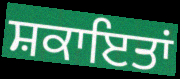
ਸ਼ਕਾਇਤਾਂ